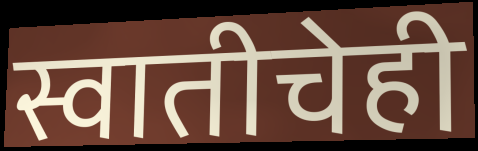
स्वातीचेही